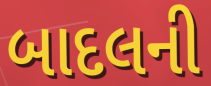
બાદલની